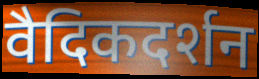
वैदिकदर्शन